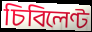
চিবিলেণ্ট